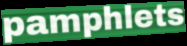
pamphlets